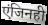
एंजिनही